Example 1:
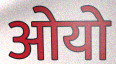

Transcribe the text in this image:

ओयो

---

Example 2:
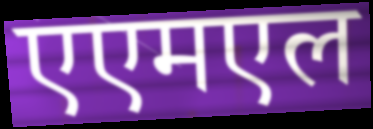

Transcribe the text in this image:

एएमएल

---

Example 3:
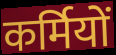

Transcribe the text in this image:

कर्मियों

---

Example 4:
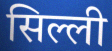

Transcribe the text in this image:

सिल्ली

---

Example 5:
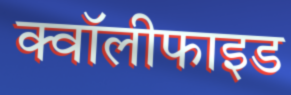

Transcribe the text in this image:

क्वॉलीफाइड